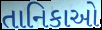
તાનિકાઓ